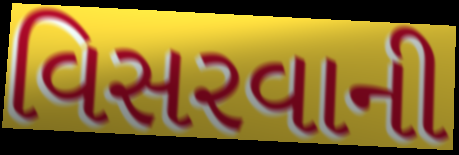
વિસરવાની